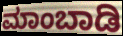
ಮಾಂಬಾಡಿ